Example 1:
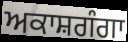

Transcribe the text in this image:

ਅਕਾਸ਼ਗੰਗਾ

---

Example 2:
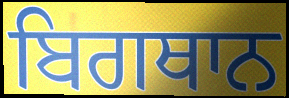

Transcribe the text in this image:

ਬਿਗਥਾਨ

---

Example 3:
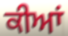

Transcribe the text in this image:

ਕੀਆਂ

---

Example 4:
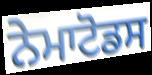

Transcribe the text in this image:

ਨੇਮਾਟੋਡਸ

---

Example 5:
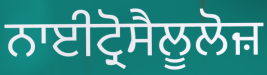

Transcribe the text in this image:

ਨਾਈਟ੍ਰੋਸੈਲੂਲੋਜ਼